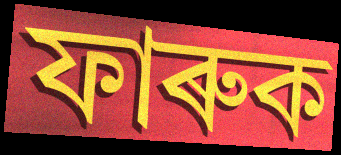
ফাৰুক